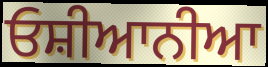
ਓਸ਼ੀਆਨੀਆ